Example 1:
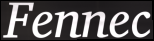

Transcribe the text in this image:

Fennec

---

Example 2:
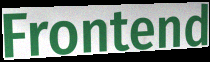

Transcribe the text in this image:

Frontend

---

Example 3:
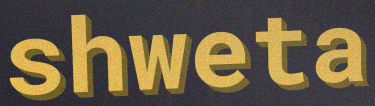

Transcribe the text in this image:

shweta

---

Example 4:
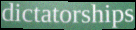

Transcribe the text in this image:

dictatorships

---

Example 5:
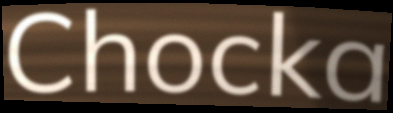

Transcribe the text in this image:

Chocka